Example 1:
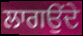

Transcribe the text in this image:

ਲਾਗਉਂਦੇ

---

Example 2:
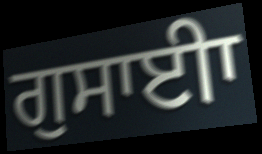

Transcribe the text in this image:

ਗੁਸਾਈਾ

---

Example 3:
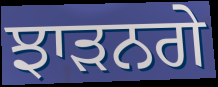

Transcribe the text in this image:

ਝਾੜਨਗੇ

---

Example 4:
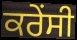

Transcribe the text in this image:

ਕਰੇੰਸੀ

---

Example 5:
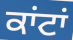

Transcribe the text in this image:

ਕਾਂਟਾਂ